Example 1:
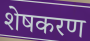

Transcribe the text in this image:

शेषकरण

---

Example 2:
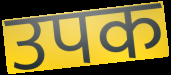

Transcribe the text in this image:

उपक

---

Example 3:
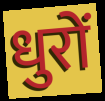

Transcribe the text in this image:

धुरों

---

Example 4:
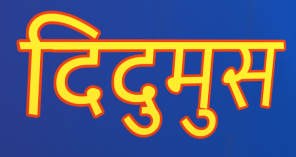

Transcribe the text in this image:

दिदुमुस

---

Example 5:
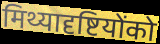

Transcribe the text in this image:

मिथ्यादृष्टियोंको